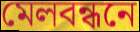
মেলবন্ধনে